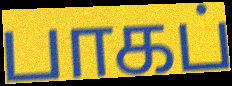
பாகப்